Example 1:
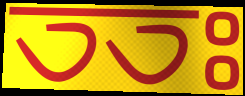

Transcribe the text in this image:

ততঃ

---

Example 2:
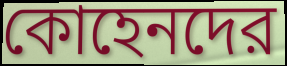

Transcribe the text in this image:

কোহেনদের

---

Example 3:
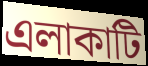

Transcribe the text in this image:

এলাকাটি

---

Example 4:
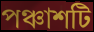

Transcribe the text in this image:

পঞ্চাশটি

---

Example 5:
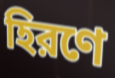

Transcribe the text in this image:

হিরণে